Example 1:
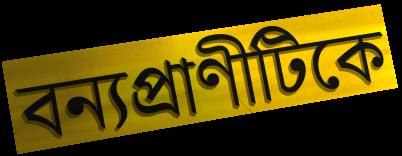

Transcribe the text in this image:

বন্যপ্রাণীটিকে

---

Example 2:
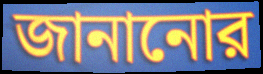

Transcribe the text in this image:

জানানোর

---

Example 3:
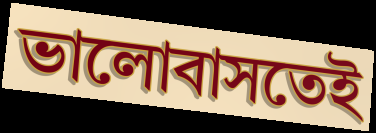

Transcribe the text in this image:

ভালোবাসতেই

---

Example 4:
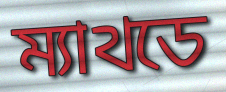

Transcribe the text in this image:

ম্যাথডে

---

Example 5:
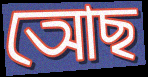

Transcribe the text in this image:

আেছ